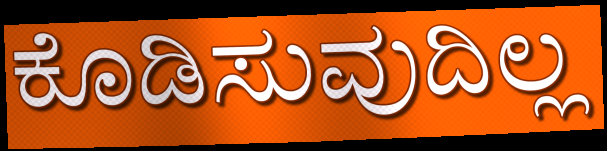
ಕೊಡಿಸುವುದಿಲ್ಲ